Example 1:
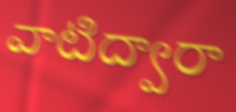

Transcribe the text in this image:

వాటిద్వారా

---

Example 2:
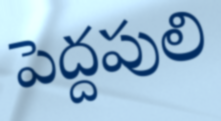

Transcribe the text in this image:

పెద్దపులి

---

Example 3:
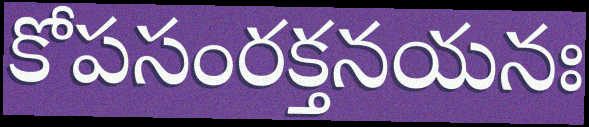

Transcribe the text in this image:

కోపసంరక్తనయనః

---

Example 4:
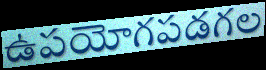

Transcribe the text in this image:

ఉపయోగపడగల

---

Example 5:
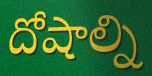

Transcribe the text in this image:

దోషాల్ని